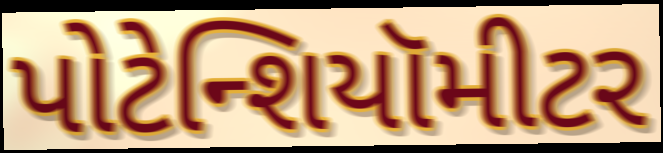
પોટેન્શિયૉમીટર